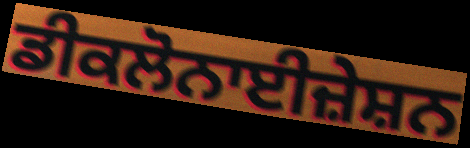
ਡੀਕਲੋਨਾਈਜ਼ੇਸ਼ਨ